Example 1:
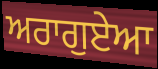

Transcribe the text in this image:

ਅਰਾਗੁਏਆ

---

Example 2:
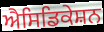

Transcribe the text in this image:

ਐਸਿਡਿਕੇਸ਼ਨ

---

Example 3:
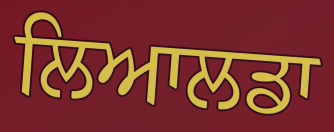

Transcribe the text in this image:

ਲਿਆਲਡਾ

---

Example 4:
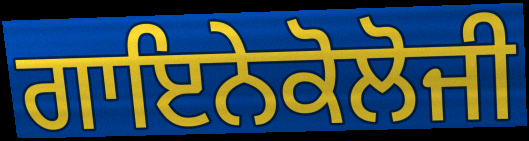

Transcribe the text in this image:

ਗਾਇਨੇਕੋਲੋਜੀ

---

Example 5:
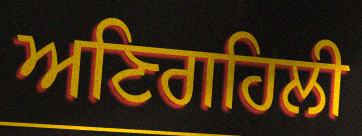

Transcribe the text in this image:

ਅਣਿਗਹਿਲੀ